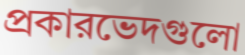
প্রকারভেদগুলো